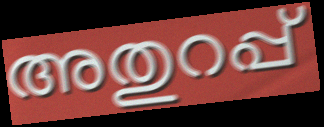
അതുറപ്പ്